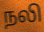
நலி